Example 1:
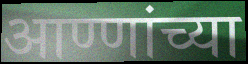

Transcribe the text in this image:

आण्णांच्या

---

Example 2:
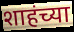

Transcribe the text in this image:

शाहंच्या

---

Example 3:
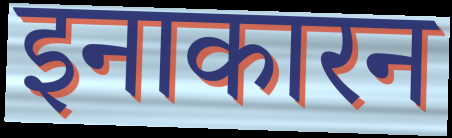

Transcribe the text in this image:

इनाकारन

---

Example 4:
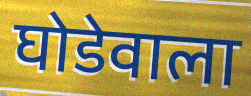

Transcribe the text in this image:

घोडेवाला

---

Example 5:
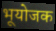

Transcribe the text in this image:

भूयोजक